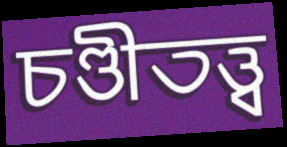
চণ্ডীতত্ত্ব